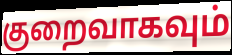
குறைவாகவும்